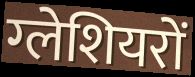
ग्‍लेशियरों